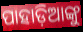
ପାହାଡ଼ିଆଙ୍କୁ